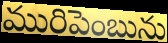
మురిపెంబును